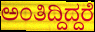
ಅಂತಿದ್ದಿದ್ದರೆ